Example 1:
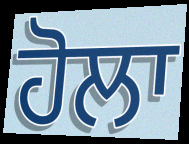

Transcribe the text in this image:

ਹੋਲਾ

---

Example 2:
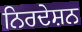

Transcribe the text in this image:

ਨਿਰਦੇਸ਼ਨ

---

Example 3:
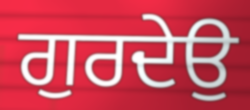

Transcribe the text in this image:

ਗੁਰਦੇਉ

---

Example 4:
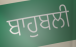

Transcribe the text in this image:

ਬਾਹੁਬਲੀ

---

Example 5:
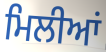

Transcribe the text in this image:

ਮਿਲੀਆਂ